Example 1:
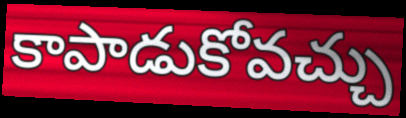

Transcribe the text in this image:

కాపాడుకోవచ్చు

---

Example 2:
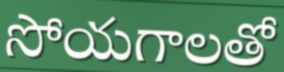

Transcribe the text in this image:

సోయగాలతో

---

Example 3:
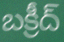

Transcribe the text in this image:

బక్రీద్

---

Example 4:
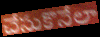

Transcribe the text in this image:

చేసుకొనేలా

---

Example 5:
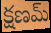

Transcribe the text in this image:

క్షణమ్